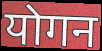
योगन